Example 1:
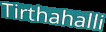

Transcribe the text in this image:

Tirthahalli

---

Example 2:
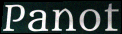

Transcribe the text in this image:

Panot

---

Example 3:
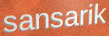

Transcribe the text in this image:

sansarik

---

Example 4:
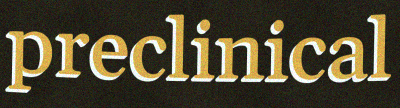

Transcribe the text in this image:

preclinical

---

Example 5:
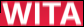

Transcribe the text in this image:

WITA